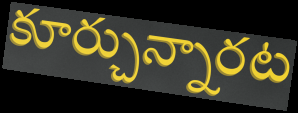
కూర్చున్నారట